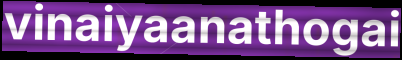
vinaiyaanathogai